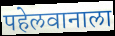
पहेलवानाला